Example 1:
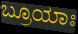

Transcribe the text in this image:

ಬ್ರೂಯಾಃ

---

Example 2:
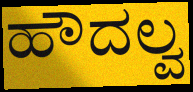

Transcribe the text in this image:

ಹೌದಲ್ವ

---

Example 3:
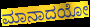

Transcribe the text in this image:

ಮಾನಾದಯೋ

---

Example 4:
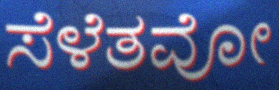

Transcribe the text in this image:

ಸೆಳೆತವೋ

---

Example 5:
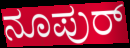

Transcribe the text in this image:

ನೂಪುರ್